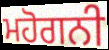
ਮਹੋਗਨੀ